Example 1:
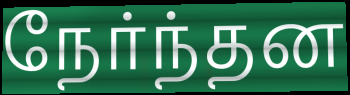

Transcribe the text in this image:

நேர்ந்தன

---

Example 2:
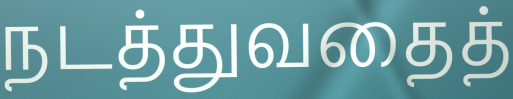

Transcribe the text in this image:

நடத்துவதைத்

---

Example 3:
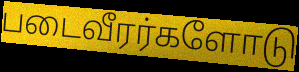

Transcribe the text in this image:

படைவீரர்களோடு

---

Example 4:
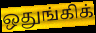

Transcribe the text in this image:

ஒதுங்கிக்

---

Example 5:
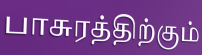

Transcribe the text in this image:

பாசுரத்திற்கும்